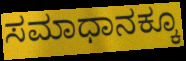
ಸಮಾಧಾನಕ್ಕೂ